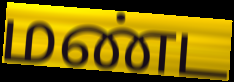
மண்ட